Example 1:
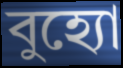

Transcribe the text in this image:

বুহ্যো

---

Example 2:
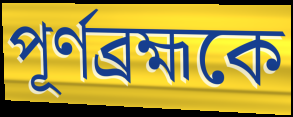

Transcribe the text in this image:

পূর্ণব্রহ্মকে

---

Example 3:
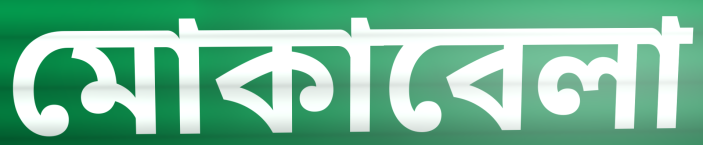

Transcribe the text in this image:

মোকাবেলা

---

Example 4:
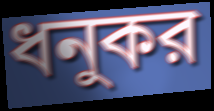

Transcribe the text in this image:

ধনুকর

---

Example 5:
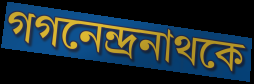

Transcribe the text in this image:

গগনেন্দ্রনাথকে